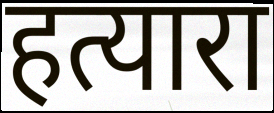
हत्यारा